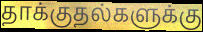
தாக்குதல்களுக்கு